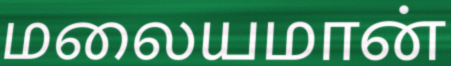
மலையமான்